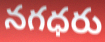
నగధరు